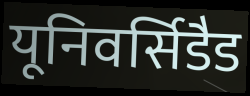
यूनिवर्सिडैड